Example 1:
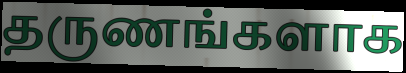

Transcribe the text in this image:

தருணங்களாக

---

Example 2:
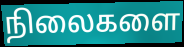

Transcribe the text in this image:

நிலைகளை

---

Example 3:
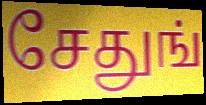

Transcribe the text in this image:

சேதுங்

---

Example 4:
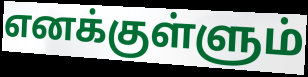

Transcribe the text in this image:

எனக்குள்ளும்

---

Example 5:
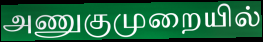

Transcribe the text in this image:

அணுகுமுறையில்